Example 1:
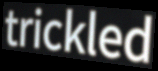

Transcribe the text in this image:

trickled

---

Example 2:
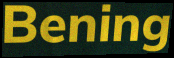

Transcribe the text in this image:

Bening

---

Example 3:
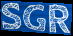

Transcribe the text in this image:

SGR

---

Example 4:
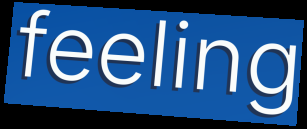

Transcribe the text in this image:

feeling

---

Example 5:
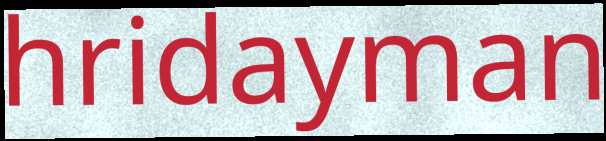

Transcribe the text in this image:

hridayman